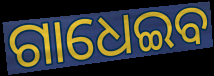
ଗାଧେଇବ